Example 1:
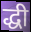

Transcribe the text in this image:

द्धी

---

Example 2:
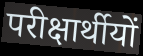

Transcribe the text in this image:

परीक्षार्थीयों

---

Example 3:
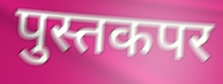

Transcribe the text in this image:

पुस्तकपर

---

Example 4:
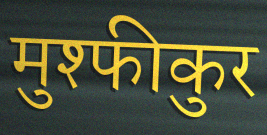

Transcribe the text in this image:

मुश्फीकुर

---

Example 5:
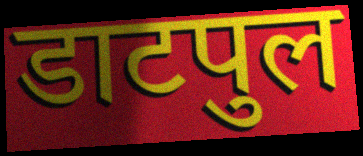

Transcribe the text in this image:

डाटपुल